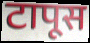
टापूस